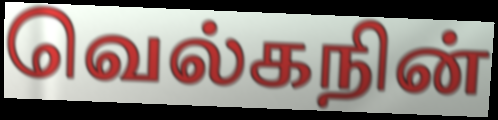
வெல்கநின்